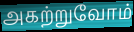
அகற்றுவோம்